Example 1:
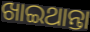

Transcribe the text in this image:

ଖାଇଥାନ୍ତା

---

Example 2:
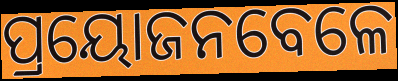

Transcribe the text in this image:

ପ୍ରୟୋଜନବେଳେ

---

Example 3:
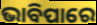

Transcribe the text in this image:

ଭାବିପାରେ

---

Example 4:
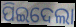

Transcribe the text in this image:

ପିଇଦେଲା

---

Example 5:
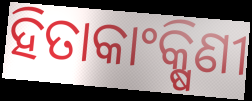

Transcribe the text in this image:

ହିତାକାଂକ୍ଷିଣୀ